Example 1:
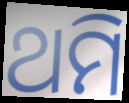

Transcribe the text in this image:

ଥମି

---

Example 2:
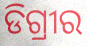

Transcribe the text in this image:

ଡିଗ୍ରୀର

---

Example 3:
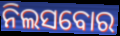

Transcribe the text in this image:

ନିଲସବୋର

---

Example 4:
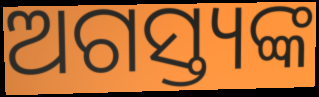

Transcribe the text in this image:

ଅଗସ୍ତ୍ୟଙ୍କ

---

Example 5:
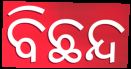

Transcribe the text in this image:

ବିଛନ୍ଦ